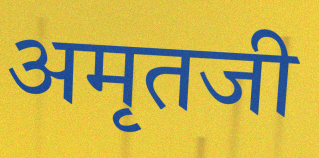
अमृतजी